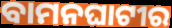
ବାମନଘାଟୀର